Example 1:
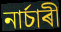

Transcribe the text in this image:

নাৰ্চাৰী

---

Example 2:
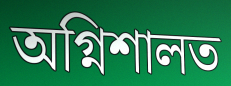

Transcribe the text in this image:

অগ্নিশালত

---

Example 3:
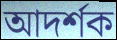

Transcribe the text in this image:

আদৰ্শক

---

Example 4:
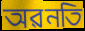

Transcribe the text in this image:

অৱনতি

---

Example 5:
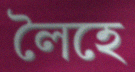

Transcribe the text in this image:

লৈহে